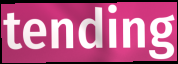
tending